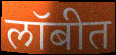
लॉबीत